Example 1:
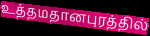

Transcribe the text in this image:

உத்தமதானபுரத்தில்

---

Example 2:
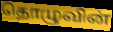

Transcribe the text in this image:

தொழுவின்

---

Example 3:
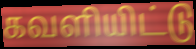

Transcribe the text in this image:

கவளியிட்டு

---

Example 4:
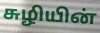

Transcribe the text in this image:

சுழியின்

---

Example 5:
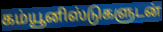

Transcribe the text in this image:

கம்யூனிஸ்டுகளுடன்